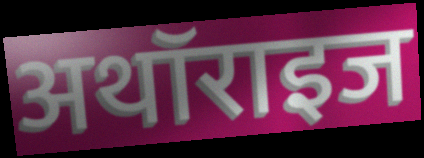
अथॉराइज